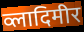
व्लादिमीर